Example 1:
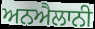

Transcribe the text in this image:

ਅਨਐਲਾਨੀ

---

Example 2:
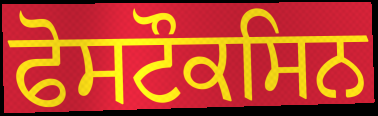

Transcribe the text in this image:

ਫੋਸਟੌਕਸਿਨ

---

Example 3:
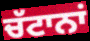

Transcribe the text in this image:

ਚੱਟਾਨਾਂ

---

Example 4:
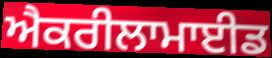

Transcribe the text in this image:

ਐਕਰੀਲਾਮਾਈਡ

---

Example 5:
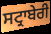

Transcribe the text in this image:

ਸਟ੍ਰਾਬੇਰੀ